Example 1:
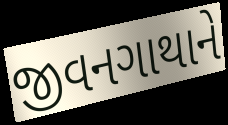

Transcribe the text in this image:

જીવનગાથાને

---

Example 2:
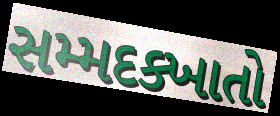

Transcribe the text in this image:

સમ્મદક્ખાતો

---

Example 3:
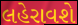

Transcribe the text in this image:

લહેરાવશે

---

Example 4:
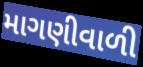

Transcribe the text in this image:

માગણીવાળી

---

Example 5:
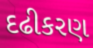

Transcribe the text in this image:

દઢીકરણ